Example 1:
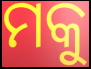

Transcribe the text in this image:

ମକୁ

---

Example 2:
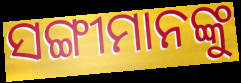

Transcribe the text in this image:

ସଙ୍ଗୀମାନଙ୍କୁ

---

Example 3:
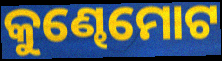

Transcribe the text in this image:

କୁଣ୍ଢେମୋଟ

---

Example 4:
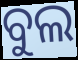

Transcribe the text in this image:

ବୁଲ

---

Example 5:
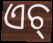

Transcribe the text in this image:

ଏଚ୍